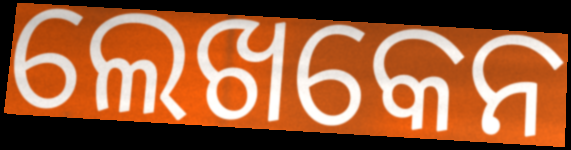
ଲେଖକେନ